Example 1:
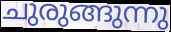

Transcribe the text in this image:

ചുരുങ്ങുന്നു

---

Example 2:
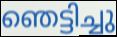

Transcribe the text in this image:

ഞെട്ടിച്ചു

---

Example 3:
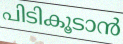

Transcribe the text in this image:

പിടികൂടാൻ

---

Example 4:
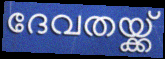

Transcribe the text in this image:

ദേവതയ്ക്ക്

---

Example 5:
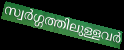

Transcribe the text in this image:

സ്വർഗ്ഗത്തിലുള്ളവർ